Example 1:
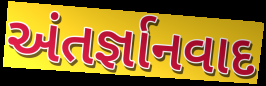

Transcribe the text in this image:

અંતર્જ્ઞાનવાદ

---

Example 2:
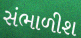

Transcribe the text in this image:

સંભાળીશ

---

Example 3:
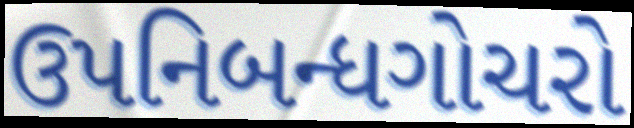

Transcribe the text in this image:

ઉપનિબન્ધગોચરો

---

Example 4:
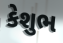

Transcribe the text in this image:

કેશુભ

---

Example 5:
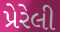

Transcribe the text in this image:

પ્રેરેલી